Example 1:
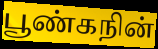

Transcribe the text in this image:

பூண்கநின்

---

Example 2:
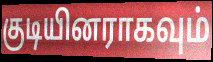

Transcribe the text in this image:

குடியினராகவும்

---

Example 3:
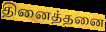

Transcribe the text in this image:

தினைத்தனை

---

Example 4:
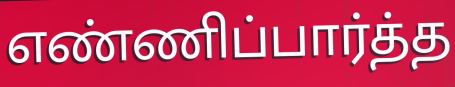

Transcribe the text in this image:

எண்ணிப்பார்த்த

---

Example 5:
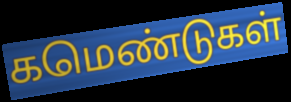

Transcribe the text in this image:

கமெண்டுகள்